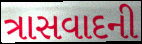
ત્રાસવાદની